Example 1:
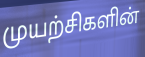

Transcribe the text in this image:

முயற்சிகளின்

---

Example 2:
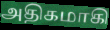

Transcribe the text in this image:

அதிகமாகி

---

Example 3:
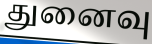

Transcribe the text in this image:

துனைவு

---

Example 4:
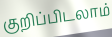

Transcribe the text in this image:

குறிப்பிடலாம்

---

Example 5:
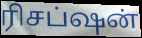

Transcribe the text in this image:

ரிசப்ஷன்